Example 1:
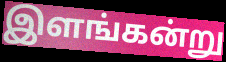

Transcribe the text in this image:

இளங்கன்று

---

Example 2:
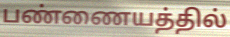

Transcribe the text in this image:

பண்ணையத்தில்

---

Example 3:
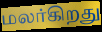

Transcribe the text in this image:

மலர்கிறது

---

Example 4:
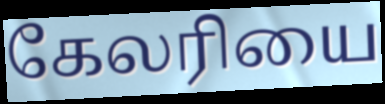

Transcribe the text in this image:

கேலரியை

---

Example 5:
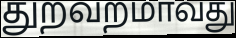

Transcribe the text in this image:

துறவறமாவது